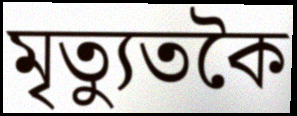
মৃত্যুতকৈ